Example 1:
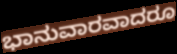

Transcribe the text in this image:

ಭಾನುವಾರವಾದರೂ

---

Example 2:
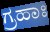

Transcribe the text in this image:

ಗ್ರಹಾಃ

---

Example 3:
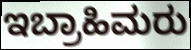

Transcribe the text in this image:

ಇಬ್ರಾಹಿಮರು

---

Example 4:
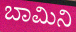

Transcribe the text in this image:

ಬಾಮಿನಿ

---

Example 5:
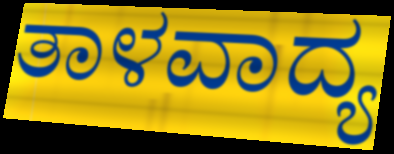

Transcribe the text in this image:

ತಾಳವಾದ್ಯ